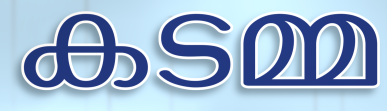
കടമ്മ